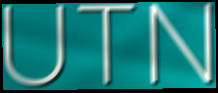
UTN